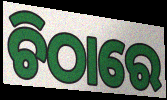
ଚିଠାରେ